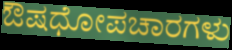
ಔಷಧೋಪಚಾರಗಳು